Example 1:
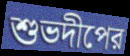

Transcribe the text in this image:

শুভদীপের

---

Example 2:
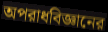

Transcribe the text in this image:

অপরাধবিজ্ঞানের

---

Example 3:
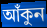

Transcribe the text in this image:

আঁকুন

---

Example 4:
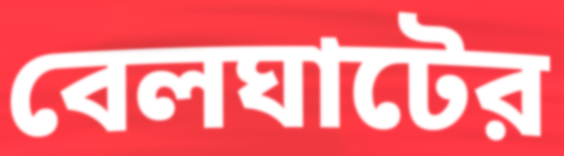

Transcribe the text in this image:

বেলঘাটের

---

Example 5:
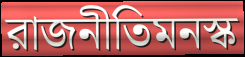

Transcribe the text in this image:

রাজনীতিমনস্ক